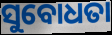
ସୁବୋଧତା